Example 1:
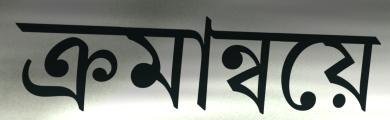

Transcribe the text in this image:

ক্ৰমান্বয়ে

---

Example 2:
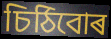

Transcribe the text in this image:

চিঠিবোৰ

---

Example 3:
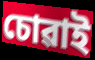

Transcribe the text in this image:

চোৱাই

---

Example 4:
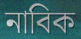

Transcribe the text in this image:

নাবিক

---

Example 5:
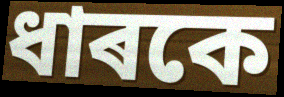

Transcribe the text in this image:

ধাৰকে